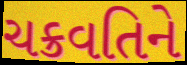
ચક્રવતિને